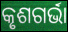
କୃଶଗର୍ଭା